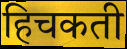
हिचकती